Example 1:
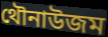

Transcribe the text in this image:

থৌনাউজম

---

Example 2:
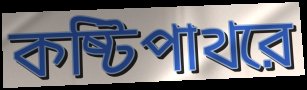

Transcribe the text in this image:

কষ্টিপাথরে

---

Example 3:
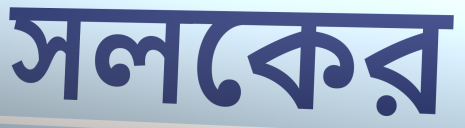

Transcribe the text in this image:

সলকের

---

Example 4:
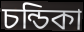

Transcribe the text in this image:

চন্ডিকা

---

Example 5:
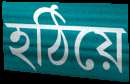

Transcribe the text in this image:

হঠিয়ে